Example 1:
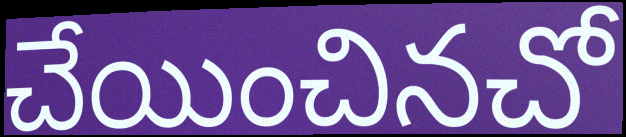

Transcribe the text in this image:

చేయించినచో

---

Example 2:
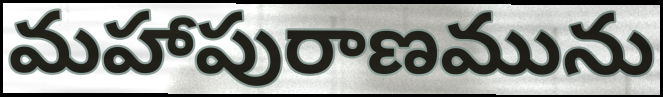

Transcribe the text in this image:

మహాపురాణమును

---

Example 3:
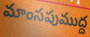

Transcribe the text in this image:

మాంసపుముద్ద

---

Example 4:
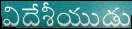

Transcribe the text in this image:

విదేశీయుడు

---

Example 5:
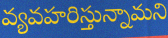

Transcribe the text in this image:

వ్యవహరిస్తున్నామని